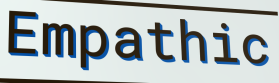
Empathic